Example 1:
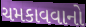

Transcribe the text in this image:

ચમકાવવાનો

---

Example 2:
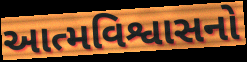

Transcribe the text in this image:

આત્મવિશ્વાસનો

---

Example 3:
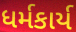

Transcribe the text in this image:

ધર્મકાર્ય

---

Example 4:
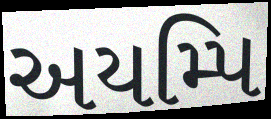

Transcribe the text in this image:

અયમ્પિ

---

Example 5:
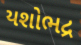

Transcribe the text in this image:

યશોભદ્ર